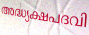
അദ്ധ്യക്ഷപദവി